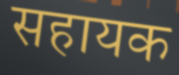
सहायक